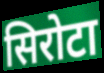
सिरोटा